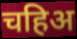
चहिअ